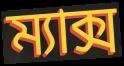
ম্যাক্স